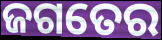
ଜଗତେର